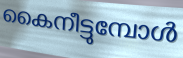
കൈനീട്ടുമ്പോൾ